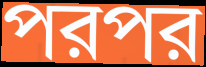
পরপর